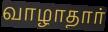
வாழாதார்